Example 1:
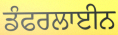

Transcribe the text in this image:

ਡੰਫਰਲਾਈਨ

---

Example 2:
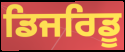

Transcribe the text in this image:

ਡਿਜਰਿਡੂ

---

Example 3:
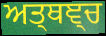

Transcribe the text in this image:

ਅਤ੍ਥਞ੍ਚ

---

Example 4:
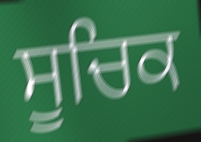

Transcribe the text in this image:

ਸੂਚਿਕ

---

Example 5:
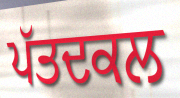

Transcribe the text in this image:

ਪੱਤਦਕਲ